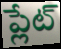
ప్లేట్